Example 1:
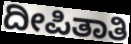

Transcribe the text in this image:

ದೀಪಿತಾತಿ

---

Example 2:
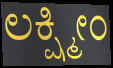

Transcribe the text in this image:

ಲಕ್ಷ್ಮೀಂ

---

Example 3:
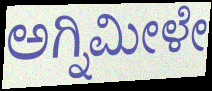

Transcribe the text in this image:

ಅಗ್ನಿಮೀಳೇ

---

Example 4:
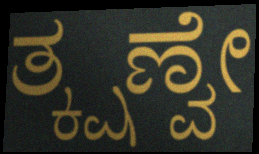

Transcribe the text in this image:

ತ್ಕ್ಷಣ್ವೇ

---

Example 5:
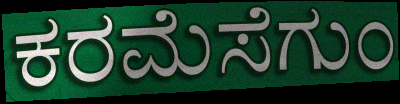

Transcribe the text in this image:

ಕರಮೆಸೆಗುಂ